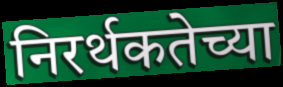
निरर्थकतेच्या